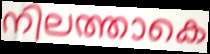
നിലത്താകെ